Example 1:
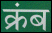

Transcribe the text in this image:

क्रंब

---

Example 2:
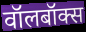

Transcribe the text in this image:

वॉलबॉक्स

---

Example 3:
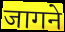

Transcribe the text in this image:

जागने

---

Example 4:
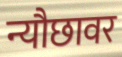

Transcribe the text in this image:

न्यौछावर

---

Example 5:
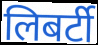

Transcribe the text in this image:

लिबर्टी